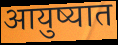
आयुष्यात